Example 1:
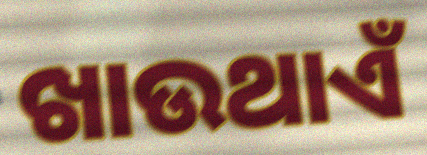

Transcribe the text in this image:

ଖାଉଥାଏଁ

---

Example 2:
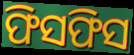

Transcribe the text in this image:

ଫିସଫିସ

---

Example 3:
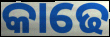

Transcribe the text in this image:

କାଢେ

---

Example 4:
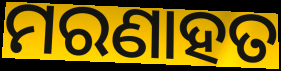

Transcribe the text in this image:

ମରଣାହତ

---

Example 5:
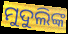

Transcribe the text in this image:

ମୁଦୁଲିଙ୍କ